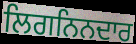
ਲਿਗਨਿਨਦਾਰ